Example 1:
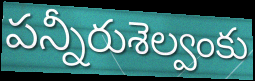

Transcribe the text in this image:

పన్నీరుశెల్వంకు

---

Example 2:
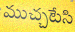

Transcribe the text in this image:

ముచ్చటేసి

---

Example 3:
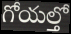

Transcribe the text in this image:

గోయల్తో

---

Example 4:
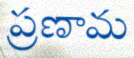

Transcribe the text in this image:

ప్రణామ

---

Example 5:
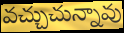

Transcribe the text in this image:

వచ్చుచున్నావు